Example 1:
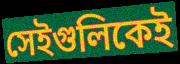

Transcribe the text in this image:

সেইগুলিকেই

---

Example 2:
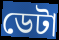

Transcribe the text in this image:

ডেটা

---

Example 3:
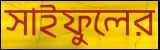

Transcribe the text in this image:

সাইফুলের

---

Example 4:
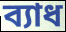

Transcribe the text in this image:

ব্যাধ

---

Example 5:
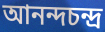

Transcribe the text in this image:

আনন্দচন্দ্র